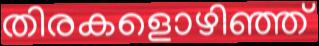
തിരകളൊഴിഞ്ഞ്